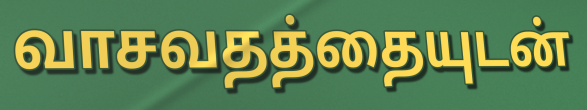
வாசவதத்தையுடன்